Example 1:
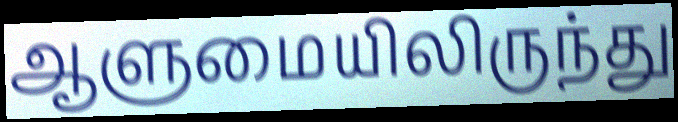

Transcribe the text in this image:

ஆளுமையிலிருந்து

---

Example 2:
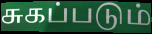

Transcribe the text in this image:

சுகப்படும்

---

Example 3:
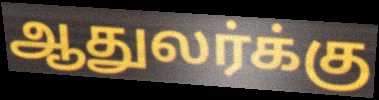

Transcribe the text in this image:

ஆதுலர்க்கு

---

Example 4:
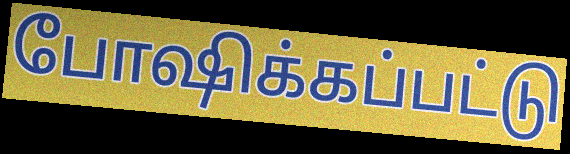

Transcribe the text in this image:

போஷிக்கப்பட்டு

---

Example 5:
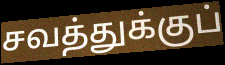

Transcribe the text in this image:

சவத்துக்குப்